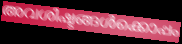
അവശിഷ്ടങ്ങൾക്കൊപ്പം